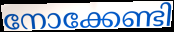
നോക്കേണ്ടി